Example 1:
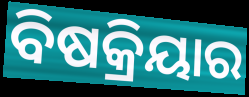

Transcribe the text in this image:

ବିଷକ୍ରିୟାର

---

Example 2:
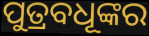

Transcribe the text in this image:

ପୁତ୍ରବଧୂଙ୍କର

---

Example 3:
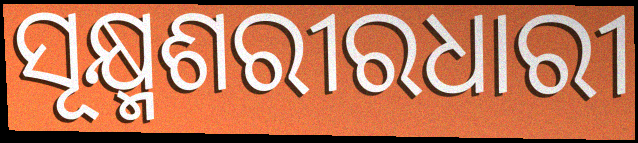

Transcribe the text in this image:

ସୂକ୍ଷ୍ମଶରୀରଧାରୀ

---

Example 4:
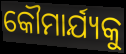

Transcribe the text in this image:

କୌମାର୍ଯ୍ୟକୁ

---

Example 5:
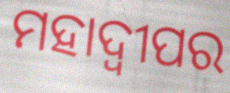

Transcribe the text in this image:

ମହାଦ୍ୱୀପର